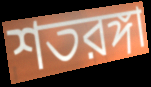
শতরঙ্গা